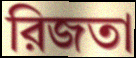
রিজতা